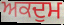
ਅਕਦੁਮ